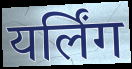
यर्लिंग